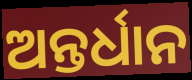
ଅନ୍ତର୍ଧାନ